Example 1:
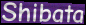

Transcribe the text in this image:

Shibata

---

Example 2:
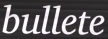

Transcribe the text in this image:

bullete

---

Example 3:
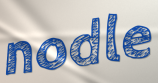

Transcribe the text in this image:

nodle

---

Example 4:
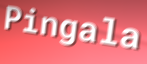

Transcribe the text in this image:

Pingala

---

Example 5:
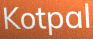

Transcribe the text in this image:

Kotpal